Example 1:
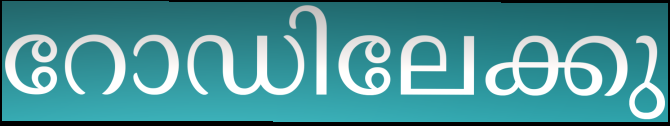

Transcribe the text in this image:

റോഡിലേക്കു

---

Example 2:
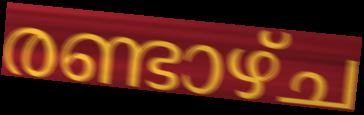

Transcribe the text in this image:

രണ്ടാഴ്ച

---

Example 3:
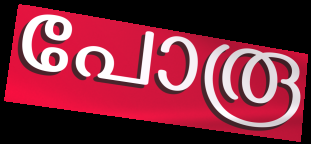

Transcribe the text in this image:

പോരൂ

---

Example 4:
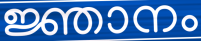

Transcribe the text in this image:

ജ്ഞാനം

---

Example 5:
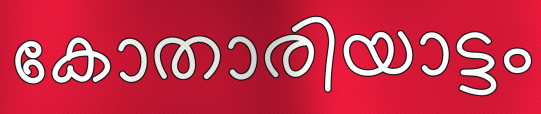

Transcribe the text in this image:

കോതാരിയാട്ടം